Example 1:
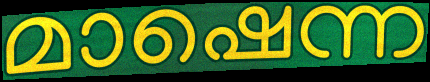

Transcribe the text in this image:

മാഷെന്ന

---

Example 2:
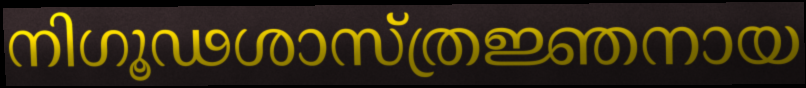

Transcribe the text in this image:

നിഗൂഢശാസ്ത്രജ്ഞനായ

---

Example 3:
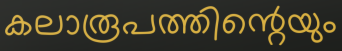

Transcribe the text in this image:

കലാരൂപത്തിന്റെയും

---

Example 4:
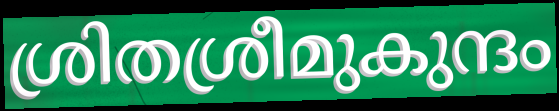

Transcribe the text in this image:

ശ്രിതശ്രീമുകുന്ദം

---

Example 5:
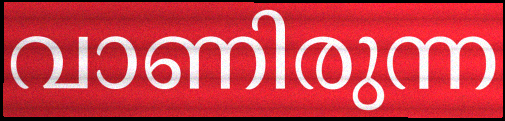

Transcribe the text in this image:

വാണിരുന്ന